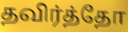
தவிர்த்தோ